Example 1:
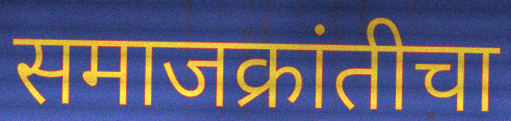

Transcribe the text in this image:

समाजक्रांतीचा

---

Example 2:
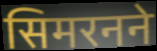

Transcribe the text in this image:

सिमरनने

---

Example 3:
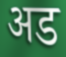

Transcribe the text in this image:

अड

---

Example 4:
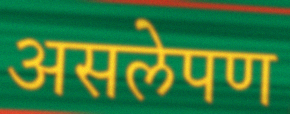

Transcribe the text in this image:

असलेपण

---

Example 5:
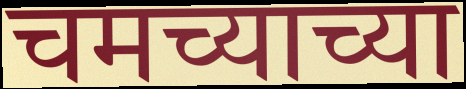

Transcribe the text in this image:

चमच्याच्या